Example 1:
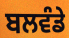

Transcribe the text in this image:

ਬਲਵੰਡੇ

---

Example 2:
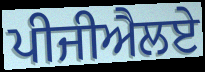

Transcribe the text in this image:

ਪੀਜੀਐਲਏ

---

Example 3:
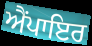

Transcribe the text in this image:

ਐਂਪਾਇਰ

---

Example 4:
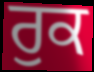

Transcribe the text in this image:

ਰੁਕ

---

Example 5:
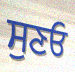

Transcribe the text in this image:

ਸੁਣਓ